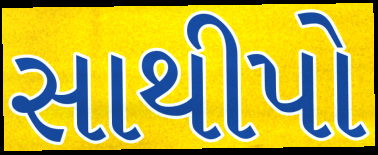
સાથીપો